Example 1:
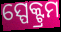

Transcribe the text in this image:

ସ୍ପେକ୍ଟ୍ରମ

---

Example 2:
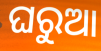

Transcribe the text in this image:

ଘରୁଆ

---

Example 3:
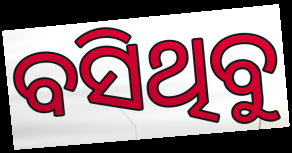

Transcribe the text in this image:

ବସିଥିବୁ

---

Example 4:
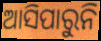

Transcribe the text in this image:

ଆସିପାରୁନି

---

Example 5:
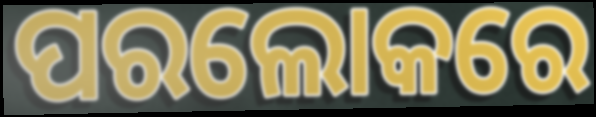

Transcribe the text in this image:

ପରଲୋକରେ